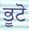
ਭੂਟੋ